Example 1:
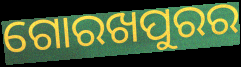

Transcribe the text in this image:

ଗୋରଖପୁରର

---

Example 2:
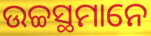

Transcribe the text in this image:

ଉଚ୍ଚସ୍ଥମାନେ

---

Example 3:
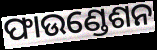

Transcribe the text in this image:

ଫାଉଣ୍ଡେଶନ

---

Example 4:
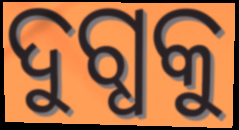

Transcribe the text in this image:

ଦୁଗ୍ଧକୁ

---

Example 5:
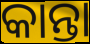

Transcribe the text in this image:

କାନ୍ତା